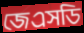
জেএসডি